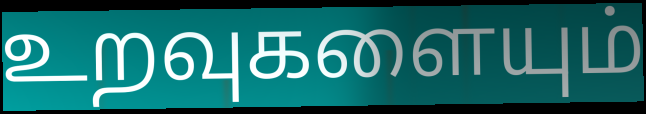
உறவுகளையும்